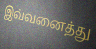
இவ்வனைத்து